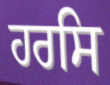
ਹਰਸਿ